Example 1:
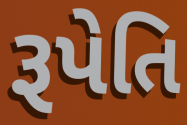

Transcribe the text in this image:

રૂપેતિ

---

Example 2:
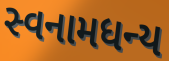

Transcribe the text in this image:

સ્વનામધન્ય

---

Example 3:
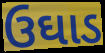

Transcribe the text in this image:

ઉઘાડ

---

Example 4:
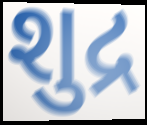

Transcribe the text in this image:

શુદ્ર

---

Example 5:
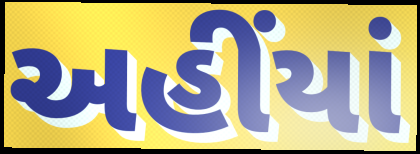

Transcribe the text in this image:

અહીંયાં